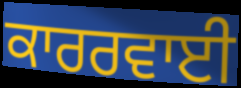
ਕਾਰਰਵਾਈ